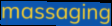
massaging